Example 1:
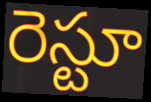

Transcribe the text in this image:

రెస్టూ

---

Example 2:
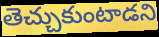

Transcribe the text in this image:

తెచ్చుకుంటాడని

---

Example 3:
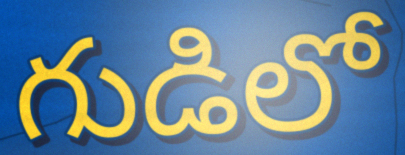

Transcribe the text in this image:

గుడిలో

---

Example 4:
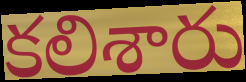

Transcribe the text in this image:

కలిశారు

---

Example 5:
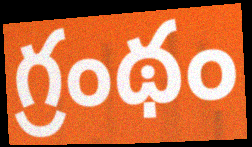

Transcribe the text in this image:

గ్రంథం